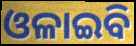
ଓଳାଇବି